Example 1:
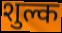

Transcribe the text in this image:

शुल्क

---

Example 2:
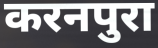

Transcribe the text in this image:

करनपुरा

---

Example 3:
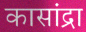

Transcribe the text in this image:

कासांद्रा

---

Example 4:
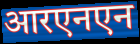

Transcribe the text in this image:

आरएनएन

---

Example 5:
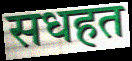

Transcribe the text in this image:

सधहत